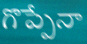
గొప్పేనా